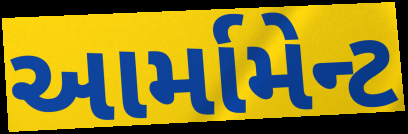
આર્મામેન્ટ